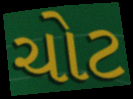
ચોટ